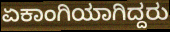
ಏಕಾಂಗಿಯಾಗಿದ್ದರು